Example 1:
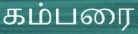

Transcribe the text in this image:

கம்பரை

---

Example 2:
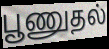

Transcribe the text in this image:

பூணுதல்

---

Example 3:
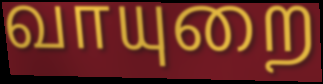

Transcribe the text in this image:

வாயுறை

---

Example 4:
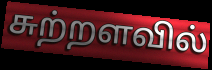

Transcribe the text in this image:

சுற்றளவில்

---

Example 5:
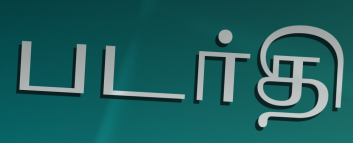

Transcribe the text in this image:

படர்தி